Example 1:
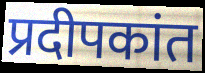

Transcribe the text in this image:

प्रदीपकांत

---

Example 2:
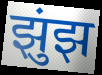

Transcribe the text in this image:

झुंझ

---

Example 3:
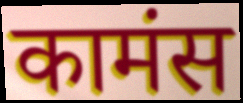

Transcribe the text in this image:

कामंस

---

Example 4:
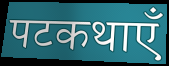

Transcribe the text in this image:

पटकथाएँ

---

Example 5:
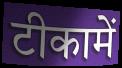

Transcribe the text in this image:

टीकामें